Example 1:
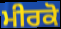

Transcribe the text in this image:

ਮੀਰਕੋ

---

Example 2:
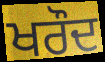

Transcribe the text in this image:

ਖਰੌਦ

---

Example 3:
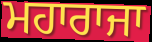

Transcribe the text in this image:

ਮਹਾਰਾਜਾ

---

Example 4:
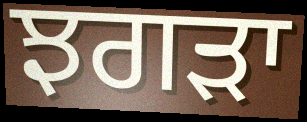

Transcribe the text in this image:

ਝਗੜਾ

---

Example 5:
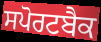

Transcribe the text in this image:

ਸਪੋਰਟਬੈਕ